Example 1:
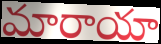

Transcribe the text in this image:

మారాయా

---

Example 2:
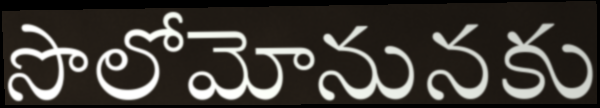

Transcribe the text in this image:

సొలోమోనునకు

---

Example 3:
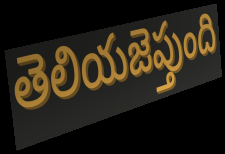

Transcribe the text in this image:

తెలియజెప్తుంది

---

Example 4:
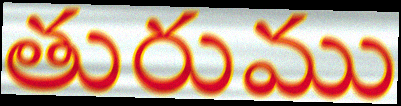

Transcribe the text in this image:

తురుము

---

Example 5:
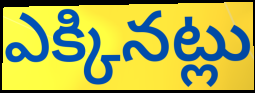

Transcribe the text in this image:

ఎక్కినట్లు